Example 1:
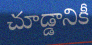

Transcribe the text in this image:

చూడ్డానికీ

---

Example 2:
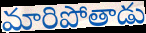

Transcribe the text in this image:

మారిపోతాడు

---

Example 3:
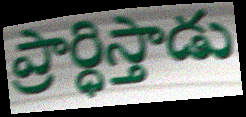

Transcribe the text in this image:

ప్రార్ధిస్తాడు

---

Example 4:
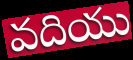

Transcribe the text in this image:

వదియు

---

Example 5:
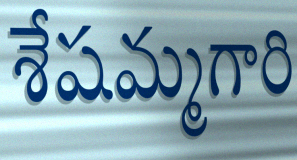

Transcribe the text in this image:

శేషమ్మగారి